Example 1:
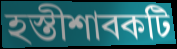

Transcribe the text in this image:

হস্তীশাবকটি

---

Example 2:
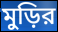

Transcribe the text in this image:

মুড়ির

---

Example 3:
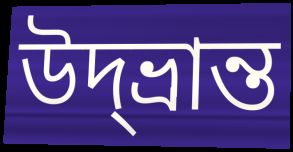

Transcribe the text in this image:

উদ্‌ভ্রান্ত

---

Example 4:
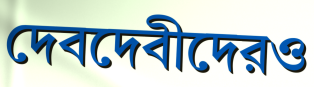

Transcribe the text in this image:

দেবদেবীদেরও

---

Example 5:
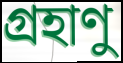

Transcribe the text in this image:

গ্রহাণু